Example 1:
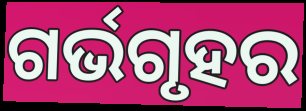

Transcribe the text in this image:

ଗର୍ଭଗୃହର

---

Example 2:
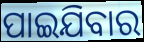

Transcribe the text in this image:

ପାଇଯିବାର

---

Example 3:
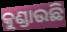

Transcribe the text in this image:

କୁଣ୍ଡାଉଛି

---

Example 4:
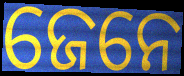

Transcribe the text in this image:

ଜେନେ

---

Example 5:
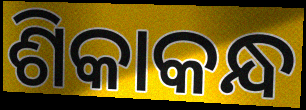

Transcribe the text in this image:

ଶିକାକନ୍ଧ